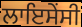
ਲਾਇਸੇਂਸੀ